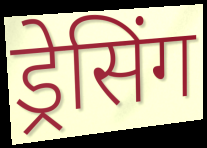
ड्रेसिंग